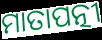
ମାତାପତ୍ନୀ